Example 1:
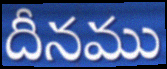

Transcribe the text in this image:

దీనము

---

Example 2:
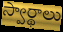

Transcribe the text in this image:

స్వార్థాలు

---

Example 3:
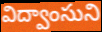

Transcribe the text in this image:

విద్వాంసుని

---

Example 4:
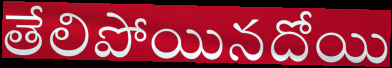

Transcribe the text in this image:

తేలిపోయినదోయి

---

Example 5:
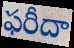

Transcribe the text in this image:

ఫరీదా